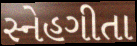
સ્નેહગીતા